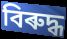
বিৰুদ্ধ